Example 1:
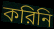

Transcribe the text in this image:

করিনি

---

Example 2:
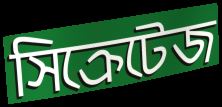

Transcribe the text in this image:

সিক্রেটেজ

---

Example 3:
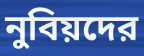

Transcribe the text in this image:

নুবিয়দের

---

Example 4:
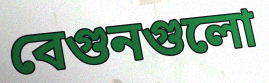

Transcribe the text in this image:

বেগুনগুলো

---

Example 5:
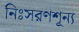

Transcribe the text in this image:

নিঃসরণশূন্য